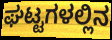
ಘಟ್ಟಗಳಲ್ಲಿನ